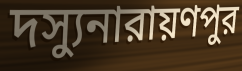
দস্যুনারায়ণপুর